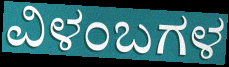
ವಿಳಂಬಗಳ